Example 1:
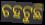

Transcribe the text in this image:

ଚହଟୁଛି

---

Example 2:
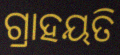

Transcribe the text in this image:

ଗ୍ରାହୟତି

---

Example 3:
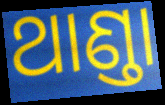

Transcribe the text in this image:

ଥାଣ୍ଡା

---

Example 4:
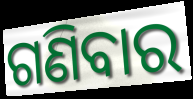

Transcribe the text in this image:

ଗଣିବାର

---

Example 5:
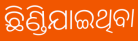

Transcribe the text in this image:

ଛିଣ୍ଡିଯାଇଥିବା